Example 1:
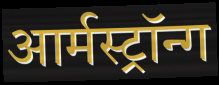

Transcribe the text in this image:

आर्मस्ट्रॉन्ग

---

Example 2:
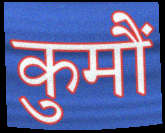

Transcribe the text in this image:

कुमौं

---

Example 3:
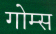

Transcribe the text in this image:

गोम्स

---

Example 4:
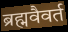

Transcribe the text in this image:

ब्रह्मवैवर्त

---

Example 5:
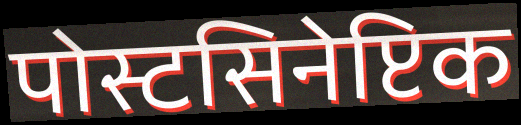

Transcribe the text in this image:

पोस्टसिनेप्टिक